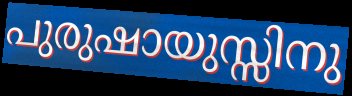
പുരുഷായുസ്സിനു